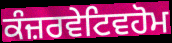
ਕੰਜ਼ਰਵੇਟਿਵਹੋਮ